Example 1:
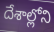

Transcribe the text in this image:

దేశాల్లోని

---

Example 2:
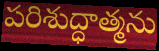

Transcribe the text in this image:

పరిశుద్ధాత్మను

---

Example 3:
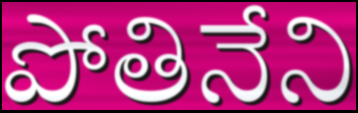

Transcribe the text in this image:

పోతినేని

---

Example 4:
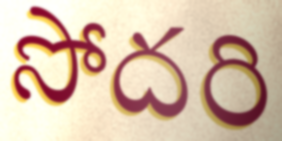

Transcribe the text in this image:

సోదరి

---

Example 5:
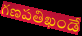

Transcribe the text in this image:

గణపతిఖండే